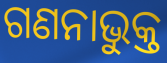
ଗଣନାଭୁକ୍ତ